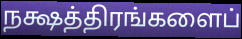
நக்ஷத்திரங்களைப்